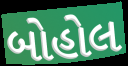
બોહોલ